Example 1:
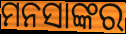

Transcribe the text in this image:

ମନସାଙ୍କର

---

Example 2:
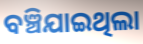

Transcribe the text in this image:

ବଞ୍ଚିଯାଇଥିଲା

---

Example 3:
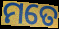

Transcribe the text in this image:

ମତେ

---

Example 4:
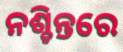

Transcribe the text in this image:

ନଶ୍ଚିନ୍ତରେ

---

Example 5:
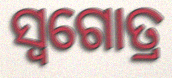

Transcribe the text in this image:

ସ୍ୱଗୋତ୍ର